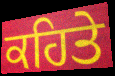
ਕਹਿਤੇ